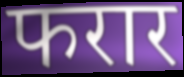
फरार